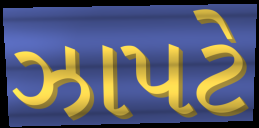
ઝાપટે